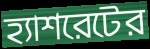
হ্যাশরেটের